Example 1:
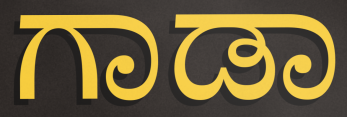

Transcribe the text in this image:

ಗಾಡಾ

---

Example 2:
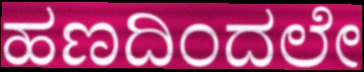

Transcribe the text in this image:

ಹಣದಿಂದಲೇ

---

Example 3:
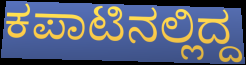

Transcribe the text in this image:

ಕಪಾಟಿನಲ್ಲಿದ್ದ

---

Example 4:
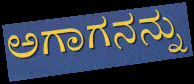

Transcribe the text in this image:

ಅಗಾಗನನ್ನು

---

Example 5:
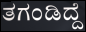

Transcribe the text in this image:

ತಗಂಡಿದ್ದೆ